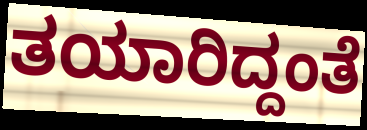
ತಯಾರಿದ್ದಂತೆ